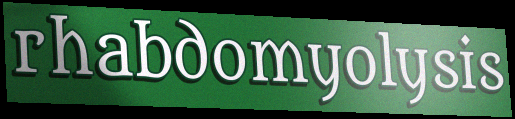
rhabdomyolysis